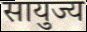
सायुज्य